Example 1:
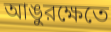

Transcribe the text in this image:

আঙুরক্ষেতে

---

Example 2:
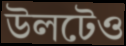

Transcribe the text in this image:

উলটেও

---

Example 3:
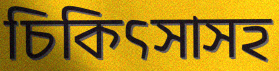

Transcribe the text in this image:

চিকিৎসাসহ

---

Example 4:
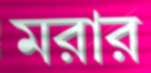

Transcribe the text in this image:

মরার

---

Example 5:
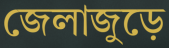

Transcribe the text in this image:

জেলাজুড়ে